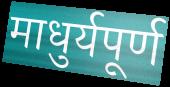
माधुर्यपूर्ण